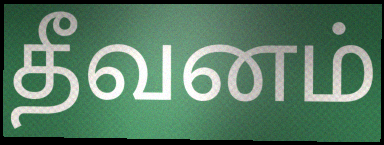
தீவனம்